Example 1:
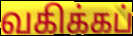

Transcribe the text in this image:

வகிக்கப்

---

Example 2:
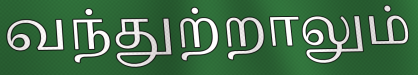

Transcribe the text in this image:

வந்துற்றாலும்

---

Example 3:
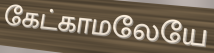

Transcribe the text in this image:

கேட்காமலேயே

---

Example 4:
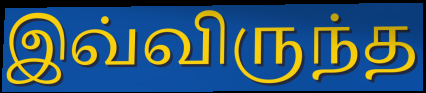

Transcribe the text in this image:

இவ்விருந்த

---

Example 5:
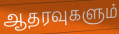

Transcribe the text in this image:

ஆதரவுகளும்